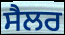
ਸੈਲਰ